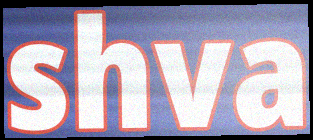
shva